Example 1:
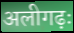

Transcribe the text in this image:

अलीगढ़ः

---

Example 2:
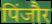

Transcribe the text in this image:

पिंजौर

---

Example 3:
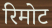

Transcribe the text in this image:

रिमोट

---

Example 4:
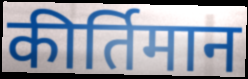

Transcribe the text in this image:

कीर्तिमान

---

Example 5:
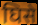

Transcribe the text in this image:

घिसे